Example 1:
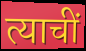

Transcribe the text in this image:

त्याचीं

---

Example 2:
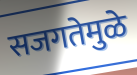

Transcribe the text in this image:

सजगतेमुळे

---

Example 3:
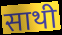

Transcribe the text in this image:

साथी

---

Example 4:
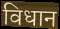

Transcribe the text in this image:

विधान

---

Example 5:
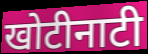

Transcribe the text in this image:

खोटीनाटी